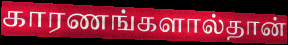
காரணங்களால்தான்